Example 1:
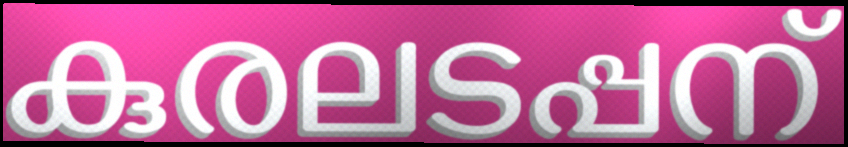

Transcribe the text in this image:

കുരലടപ്പന്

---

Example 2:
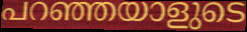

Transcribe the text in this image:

പറഞ്ഞയാളുടെ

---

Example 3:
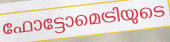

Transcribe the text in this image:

ഫോട്ടോമെട്രിയുടെ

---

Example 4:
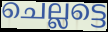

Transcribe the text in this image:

ചെല്ലട്ടെ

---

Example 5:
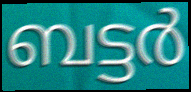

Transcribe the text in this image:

ബട്ടർ